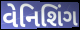
વેનિશિંગ